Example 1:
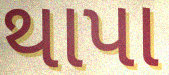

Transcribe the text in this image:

થાપા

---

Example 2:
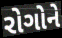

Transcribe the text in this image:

રોગોને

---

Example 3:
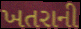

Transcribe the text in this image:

ખતરાની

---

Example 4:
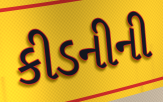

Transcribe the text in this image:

કીડનીની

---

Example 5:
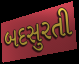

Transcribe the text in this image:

બદસુરતી